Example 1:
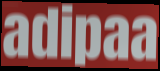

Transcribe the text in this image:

adipaa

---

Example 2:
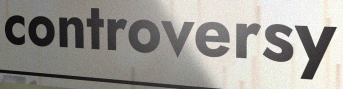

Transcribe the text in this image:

controversy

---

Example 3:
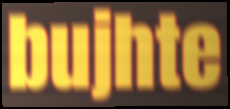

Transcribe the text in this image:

bujhte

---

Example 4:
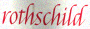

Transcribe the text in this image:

rothschild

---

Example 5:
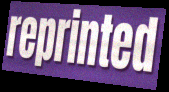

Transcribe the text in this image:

reprinted